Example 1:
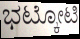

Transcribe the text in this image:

ಭಟ್ಕೋಟಿ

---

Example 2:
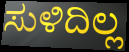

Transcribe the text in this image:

ಸುಳಿದಿಲ್ಲ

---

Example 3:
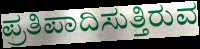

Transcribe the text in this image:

ಪ್ರತಿಪಾದಿಸುತ್ತಿರುವ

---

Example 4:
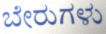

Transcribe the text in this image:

ಬೇರುಗಳು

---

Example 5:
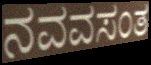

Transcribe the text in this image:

ನವವಸಂತ